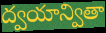
ద్వయాన్వితా